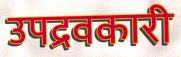
उपद्रवकारी